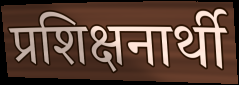
प्रशिक्षनार्थी